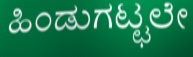
ಹಿಂಡುಗಟ್ಟಲೇ